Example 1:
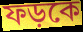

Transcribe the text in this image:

ফড়কে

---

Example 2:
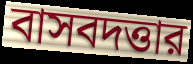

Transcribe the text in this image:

বাসবদত্তার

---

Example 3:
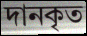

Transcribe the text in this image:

দানকৃত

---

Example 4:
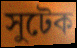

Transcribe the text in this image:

সুটেক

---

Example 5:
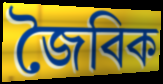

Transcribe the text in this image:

জৈবিক